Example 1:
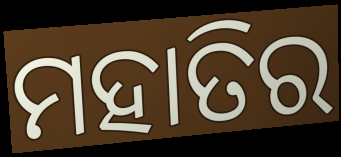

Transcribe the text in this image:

ମହାତିର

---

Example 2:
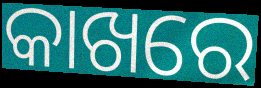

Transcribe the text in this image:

କାଖରେ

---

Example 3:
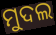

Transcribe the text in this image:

ମୁଦଲ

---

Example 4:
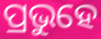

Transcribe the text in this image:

ପ୍ରଭୁହେ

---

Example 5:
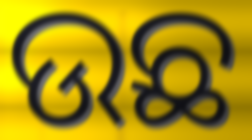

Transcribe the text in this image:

ଉଛ